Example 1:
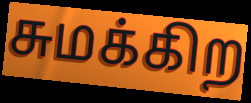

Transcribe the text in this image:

சுமக்கிற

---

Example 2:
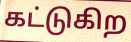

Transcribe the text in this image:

கட்டுகிற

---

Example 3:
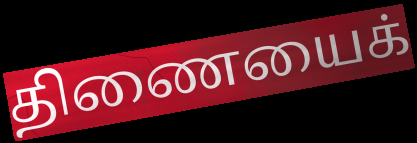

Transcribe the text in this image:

திணையைக்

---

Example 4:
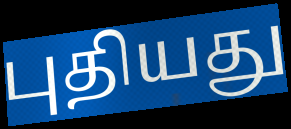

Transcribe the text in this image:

புதியது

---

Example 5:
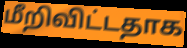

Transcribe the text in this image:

மீறிவிட்டதாக